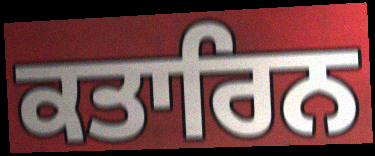
ਕਤਾਰਿਨ